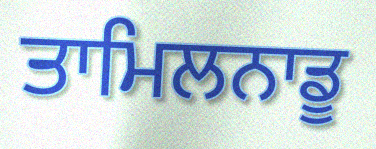
ਤਾਮਿਲਨਾਡੂ